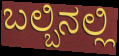
ಬಲ್ಬಿನಲ್ಲಿ